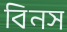
বিনস